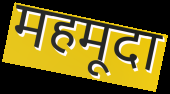
महमूदा